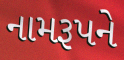
નામરૂપને